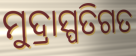
ମୁଦ୍ରାସ୍ପତିଗତ